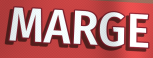
MARGE